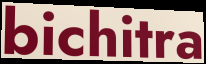
bichitra